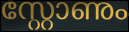
സ്റ്റോണും